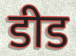
डीड